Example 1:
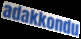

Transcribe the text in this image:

adakkondu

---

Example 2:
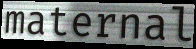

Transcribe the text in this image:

maternal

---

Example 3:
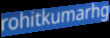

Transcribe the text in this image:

rohitkumarhg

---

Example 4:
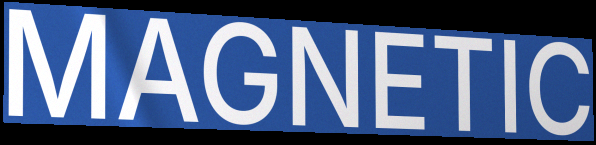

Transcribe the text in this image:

MAGNETIC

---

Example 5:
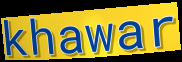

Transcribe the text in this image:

khawar